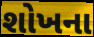
શોખના